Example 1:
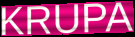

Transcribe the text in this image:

KRUPA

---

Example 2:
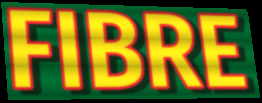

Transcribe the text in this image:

FIBRE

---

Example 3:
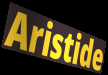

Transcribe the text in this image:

Aristide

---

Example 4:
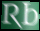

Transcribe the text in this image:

Rb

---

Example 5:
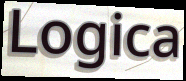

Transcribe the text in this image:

Logica